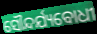
ସୌନ୍ଦର୍ଯ୍ୟବୋଧୀ